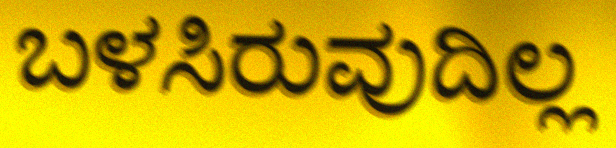
ಬಳಸಿರುವುದಿಲ್ಲ